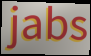
jabs